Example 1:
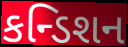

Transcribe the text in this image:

કન્ડિશન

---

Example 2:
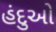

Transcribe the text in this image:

હંદુઓ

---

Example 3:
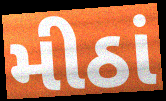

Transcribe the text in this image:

મીઠાં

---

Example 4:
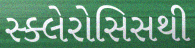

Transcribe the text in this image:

સ્ક્લેરોસિસથી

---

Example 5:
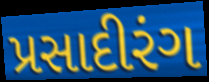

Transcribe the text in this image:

પ્રસાદીરંગ